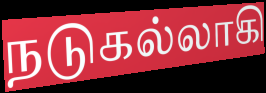
நடுகல்லாகி